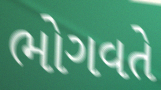
ભોગવતે